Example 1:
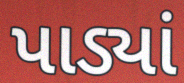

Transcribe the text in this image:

પાડ્યાં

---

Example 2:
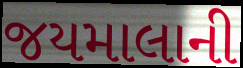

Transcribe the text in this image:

જયમાલાની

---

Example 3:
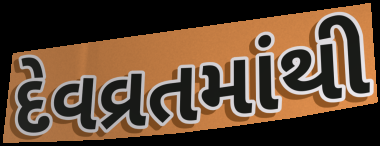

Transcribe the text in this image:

દેવવ્રતમાંથી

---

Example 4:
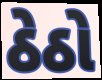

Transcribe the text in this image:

ઠેઠો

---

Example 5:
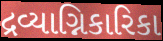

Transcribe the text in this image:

દ્રવ્યાગ્નિકારિકા